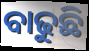
ବାଢୁଛି